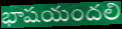
భాషయందలి